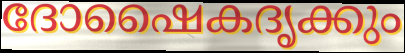
ദോഷൈകദൃക്കും